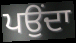
ਪਉਂਦਾ